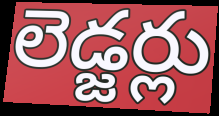
లెడ్జర్లు